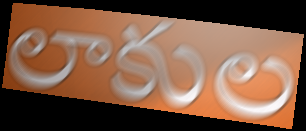
లాకుల